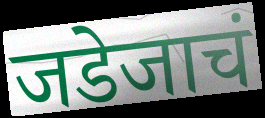
जडेजाचं